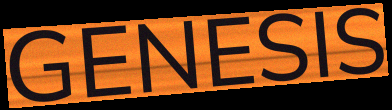
GENESIS